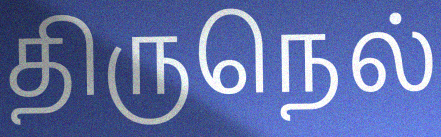
திருநெல்